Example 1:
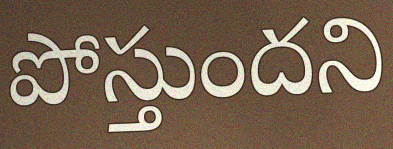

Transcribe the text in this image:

పోస్తుందని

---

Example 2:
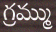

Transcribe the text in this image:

గ్రమ్ము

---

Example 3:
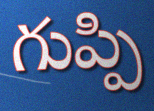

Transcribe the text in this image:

గుప్పి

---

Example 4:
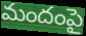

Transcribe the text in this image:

మందంపై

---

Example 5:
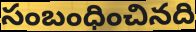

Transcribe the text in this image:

సంబంధించినది